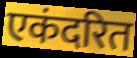
एकंदरित